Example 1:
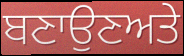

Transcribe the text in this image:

ਬਣਾਉਣਅਤੇ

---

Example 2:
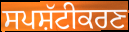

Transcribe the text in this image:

ਸਪਸ਼ੱਟੀਕਰਣ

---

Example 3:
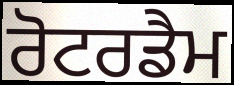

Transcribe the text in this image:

ਰੋਟਰਡੈਮ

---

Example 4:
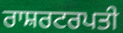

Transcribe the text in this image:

ਰਾਸ਼ਰਟਰਪਤੀ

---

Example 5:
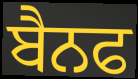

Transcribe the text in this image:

ਬੈਨਫ